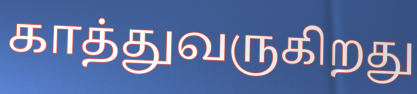
காத்துவருகிறது